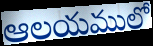
ఆలయములో